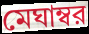
মেঘাম্বর